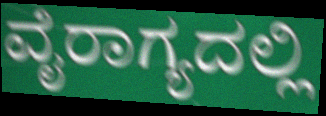
ವೈರಾಗ್ಯದಲ್ಲಿ